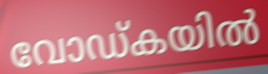
വോഡ്കയിൽ